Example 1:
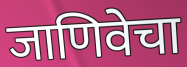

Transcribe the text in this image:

जाणिवेचा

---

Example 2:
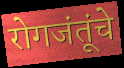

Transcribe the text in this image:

रोगजंतूंचे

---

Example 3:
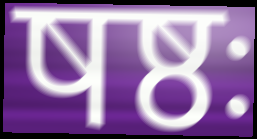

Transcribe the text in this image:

षष्ठः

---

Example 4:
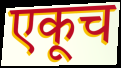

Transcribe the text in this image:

एकूच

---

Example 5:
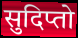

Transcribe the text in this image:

सुदिप्तो